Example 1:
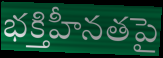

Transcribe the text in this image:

భక్తిహీనతపై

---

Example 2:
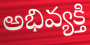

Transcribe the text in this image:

అభివ్యక్తి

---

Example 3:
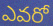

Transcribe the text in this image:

ఎవరో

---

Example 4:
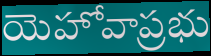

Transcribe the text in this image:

యెహోవాప్రభు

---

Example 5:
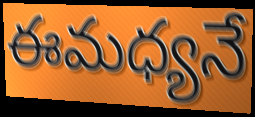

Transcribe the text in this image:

ఈమధ్యనే